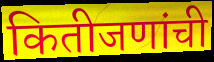
कितीजणांची